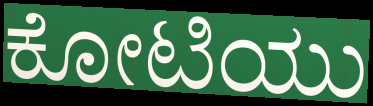
ಕೋಟಿಯು